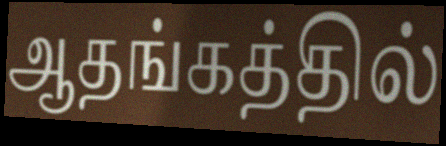
ஆதங்கத்தில்